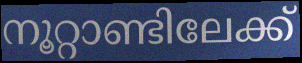
നൂറ്റാണ്ടിലേക്ക്